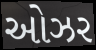
ઓઝર